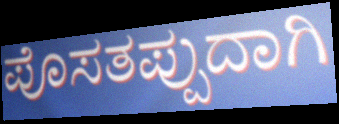
ಪೊಸತಪ್ಪುದಾಗಿ